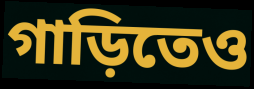
গাড়িতেও